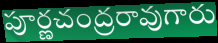
పూర్ణచంద్రరావుగారు